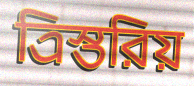
ত্রিস্তরিয়